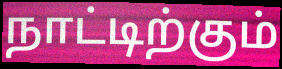
நாட்டிற்கும்